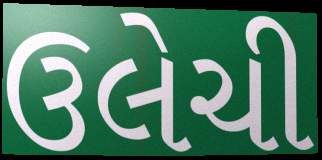
ઉલેચી